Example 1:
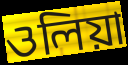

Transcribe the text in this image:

ওলিয়া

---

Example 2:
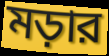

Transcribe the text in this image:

মড়ার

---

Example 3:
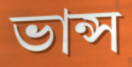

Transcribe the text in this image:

ভান্স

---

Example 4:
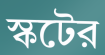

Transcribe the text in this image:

স্কটের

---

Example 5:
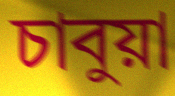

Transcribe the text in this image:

চাবুয়া